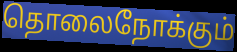
தொலைநோக்கும்